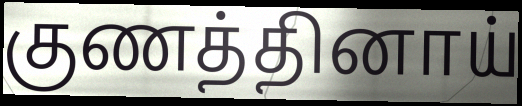
குணத்தினாய்